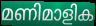
മണിമാളിക